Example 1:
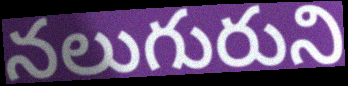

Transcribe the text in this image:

నలుగురుని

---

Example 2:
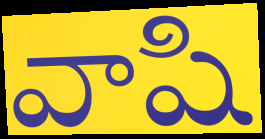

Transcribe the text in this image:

వాషి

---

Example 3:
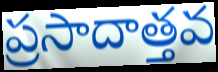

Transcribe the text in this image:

ప్రసాదాత్తవ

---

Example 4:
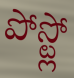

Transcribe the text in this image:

పోస్ట్లో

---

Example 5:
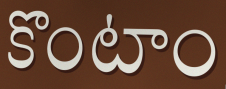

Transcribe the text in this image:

కొంటాం